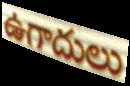
ఉగాదులు